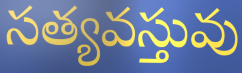
సత్యవస్తువు